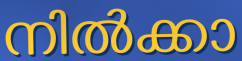
നിൽക്കാ